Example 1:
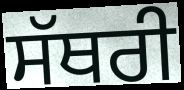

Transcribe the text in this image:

ਸੱਥਰੀ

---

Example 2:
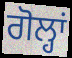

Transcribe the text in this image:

ਗੋਲ੍ਹਾਂ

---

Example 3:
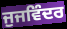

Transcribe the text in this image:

ਜੁਜਵਿੰਦਰ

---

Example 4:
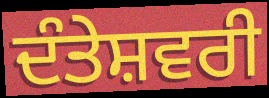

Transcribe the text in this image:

ਦੰਤੇਸ਼ਵਰੀ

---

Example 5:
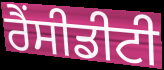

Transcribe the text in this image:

ਰੈਂਸੀਡੀਟੀ